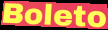
Boleto